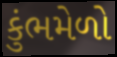
કુંભમેળો